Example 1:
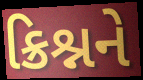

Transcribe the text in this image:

ક્રિશ્નને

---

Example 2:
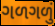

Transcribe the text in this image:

ગળગળું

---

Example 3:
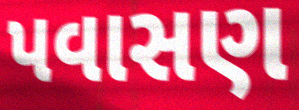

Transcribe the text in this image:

પવાસણ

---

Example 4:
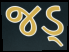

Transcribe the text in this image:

જડ્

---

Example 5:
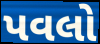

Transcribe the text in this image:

પવલો